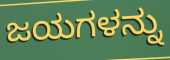
ಜಯಗಳನ್ನು